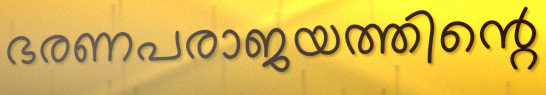
ഭരണപരാജയത്തിന്റെ